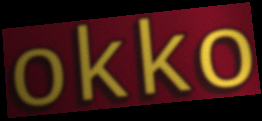
okko